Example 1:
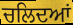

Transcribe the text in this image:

ਚਲਿਦਆਂ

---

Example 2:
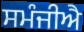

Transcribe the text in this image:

ਸਮੰਜੀਐ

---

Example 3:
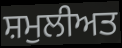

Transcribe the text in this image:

ਸ਼ਮੁਲੀਅਤ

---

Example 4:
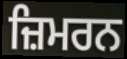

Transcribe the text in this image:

ਜ਼ਿਮਰਨ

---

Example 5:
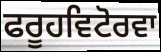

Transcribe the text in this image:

ਫਰੂਹਵਿਟੋਰਵਾ